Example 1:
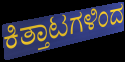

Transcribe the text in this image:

ಕಿತ್ತಾಟಗಳಿಂದ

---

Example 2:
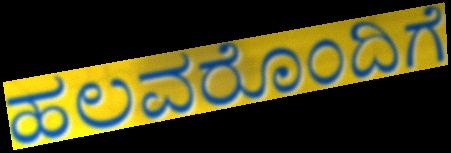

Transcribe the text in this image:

ಹಲವರೊಂದಿಗೆ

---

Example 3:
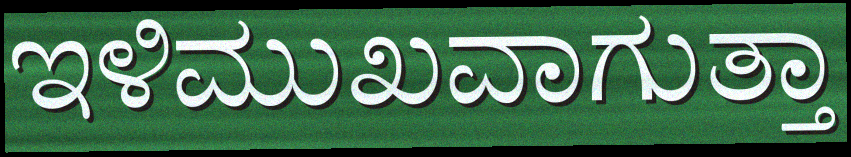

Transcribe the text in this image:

ಇಳಿಮುಖವಾಗುತ್ತಾ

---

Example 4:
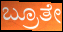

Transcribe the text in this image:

ಬ್ರೂತೇ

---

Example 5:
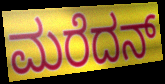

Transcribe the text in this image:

ಮರೆದನ್